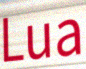
Lua